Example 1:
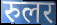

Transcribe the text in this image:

रुलर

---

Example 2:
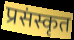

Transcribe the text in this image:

प्रसंस्कृत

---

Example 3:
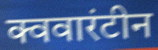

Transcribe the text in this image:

क्ववारंटीन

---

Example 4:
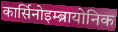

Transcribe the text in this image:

कार्सिनोइम्ब्रायोनिक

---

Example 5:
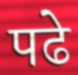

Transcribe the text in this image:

पढे